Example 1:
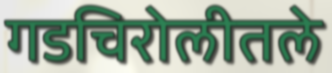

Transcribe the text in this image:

गडचिरोलीतले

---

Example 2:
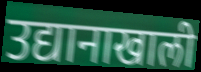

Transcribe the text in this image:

उद्यानाखाली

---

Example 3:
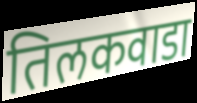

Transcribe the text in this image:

तिलकवाडा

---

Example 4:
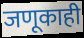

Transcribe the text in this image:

जणूकाही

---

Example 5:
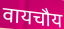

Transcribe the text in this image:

वायचौय